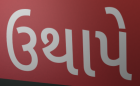
ઉથાપે